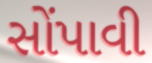
સોંપાવી